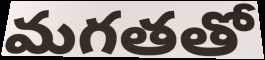
మగతతో